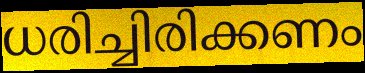
ധരിച്ചിരിക്കണം